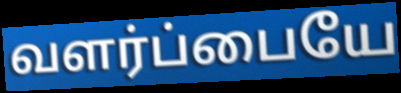
வளர்ப்பையே